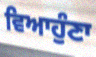
ਵਿਆਹੁੰਣਾ